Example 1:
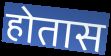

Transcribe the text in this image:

होतास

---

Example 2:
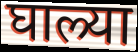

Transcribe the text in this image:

घाल्या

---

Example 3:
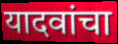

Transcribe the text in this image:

यादवांचा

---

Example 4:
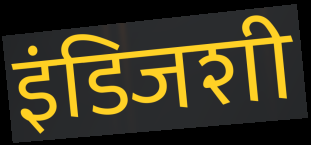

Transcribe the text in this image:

इंडिजशी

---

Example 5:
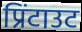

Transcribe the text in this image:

प्रिंटाउट